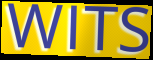
WITS